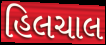
હિલચાલ